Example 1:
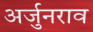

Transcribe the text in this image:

अर्जुनराव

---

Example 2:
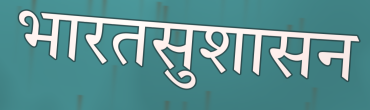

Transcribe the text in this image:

भारतसुशासन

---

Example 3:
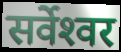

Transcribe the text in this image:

सर्वेश्‍वर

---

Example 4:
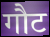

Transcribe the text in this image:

गौट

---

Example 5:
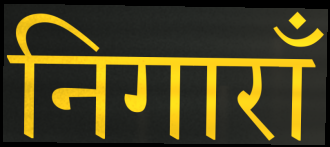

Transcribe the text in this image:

निगाराँ